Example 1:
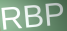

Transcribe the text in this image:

RBP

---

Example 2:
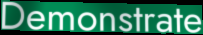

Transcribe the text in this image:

Demonstrate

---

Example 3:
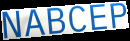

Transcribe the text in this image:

NABCEP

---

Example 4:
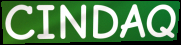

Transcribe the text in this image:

CINDAQ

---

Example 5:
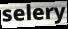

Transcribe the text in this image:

selery